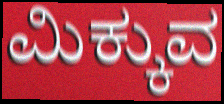
ಮಿಕ್ಕುವ